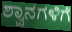
ಶ್ವಾನಗಳಿಗೆ